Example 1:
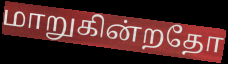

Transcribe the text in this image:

மாறுகின்றதோ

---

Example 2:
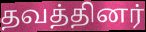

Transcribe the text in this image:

தவத்தினர்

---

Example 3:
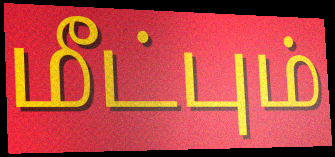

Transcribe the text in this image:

மீட்பும்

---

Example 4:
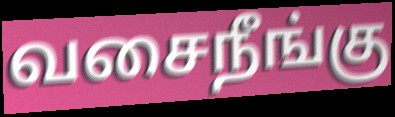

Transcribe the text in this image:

வசைநீங்கு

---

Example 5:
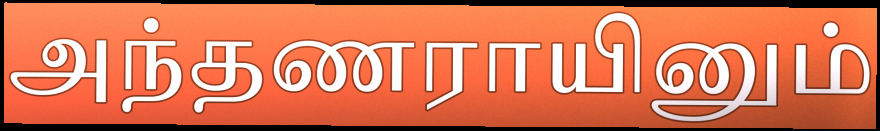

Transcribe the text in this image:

அந்தணராயினும்